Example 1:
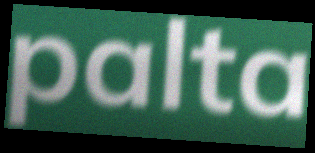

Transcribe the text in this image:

palta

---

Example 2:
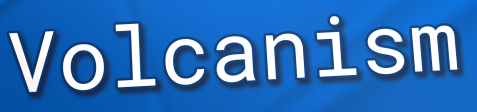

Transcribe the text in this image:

Volcanism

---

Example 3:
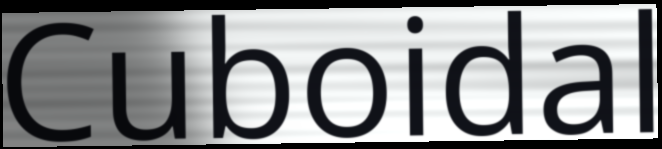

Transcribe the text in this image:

Cuboidal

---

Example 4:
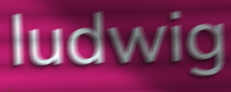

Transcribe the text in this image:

ludwig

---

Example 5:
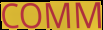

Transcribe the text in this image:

COMM